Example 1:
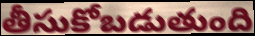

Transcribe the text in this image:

తీసుకోబడుతుంది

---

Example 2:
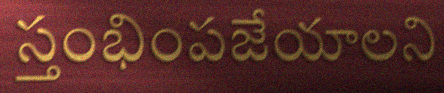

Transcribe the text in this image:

స్తంభింపజేయాలని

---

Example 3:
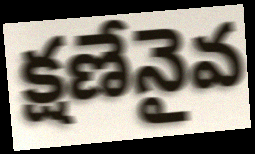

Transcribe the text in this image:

క్షణేనైవ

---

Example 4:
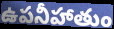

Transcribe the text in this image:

ఉపనీహాతుం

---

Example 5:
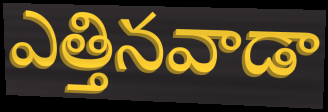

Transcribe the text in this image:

ఎత్తినవాడా